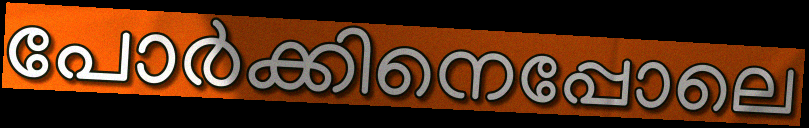
പോർക്കിനെപ്പോലെ